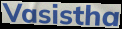
Vasistha